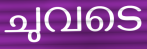
ചുവടെ